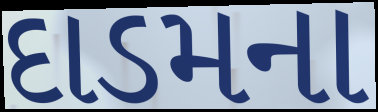
દાડમના